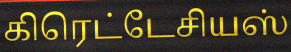
கிரெட்டேசியஸ்